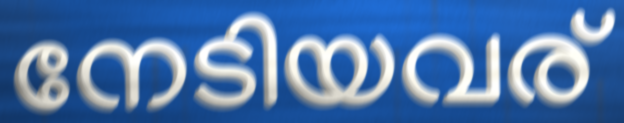
നേടിയവര്